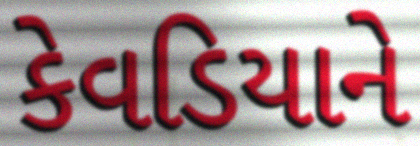
કેવડિયાને